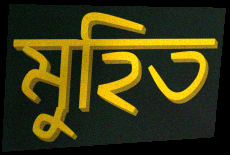
মুহিত